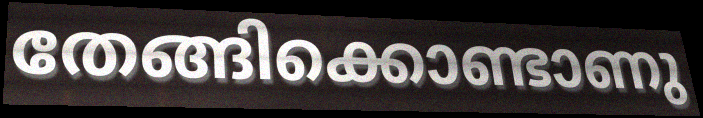
തേങ്ങിക്കൊണ്ടാണു